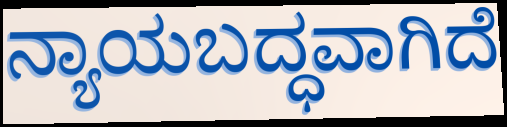
ನ್ಯಾಯಬದ್ಧವಾಗಿದೆ